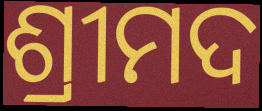
ଶ୍ରୀମଦ